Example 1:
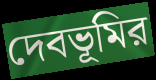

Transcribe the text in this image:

দেবভূমির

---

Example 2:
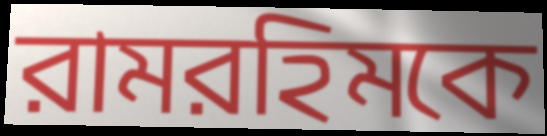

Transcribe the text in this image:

রামরহিমকে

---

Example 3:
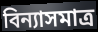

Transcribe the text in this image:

বিন্যাসমাত্র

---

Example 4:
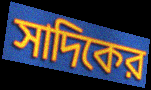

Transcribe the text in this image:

সাদিকের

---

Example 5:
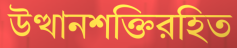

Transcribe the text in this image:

উত্থানশক্তিরহিত